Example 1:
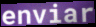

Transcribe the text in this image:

enviar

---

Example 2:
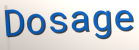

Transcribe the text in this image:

Dosage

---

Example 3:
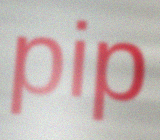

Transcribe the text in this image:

pip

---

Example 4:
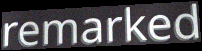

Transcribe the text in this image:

remarked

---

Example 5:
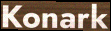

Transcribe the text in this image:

Konark